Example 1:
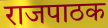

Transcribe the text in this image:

राजपाठक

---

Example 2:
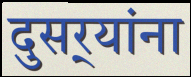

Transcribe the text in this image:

दुसर्यांना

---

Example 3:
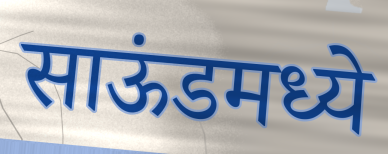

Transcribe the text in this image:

साऊंडमध्ये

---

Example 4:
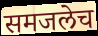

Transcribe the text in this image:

समजलेच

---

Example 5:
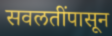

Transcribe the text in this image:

सवलतींपासून